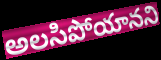
అలసిపోయానని